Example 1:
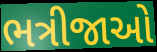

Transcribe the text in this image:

ભત્રીજાઓ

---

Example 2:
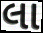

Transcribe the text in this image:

લા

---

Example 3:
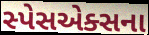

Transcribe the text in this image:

સ્પેસએક્સના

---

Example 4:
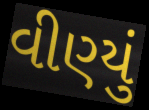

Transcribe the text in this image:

વીણ્યું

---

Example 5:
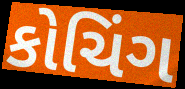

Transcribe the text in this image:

કોચિંગ